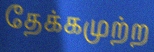
தேக்கமுற்ற